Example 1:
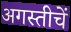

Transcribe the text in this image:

अगस्तीचें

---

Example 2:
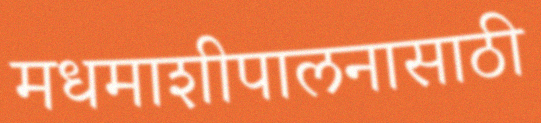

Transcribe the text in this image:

मधमाशीपालनासाठी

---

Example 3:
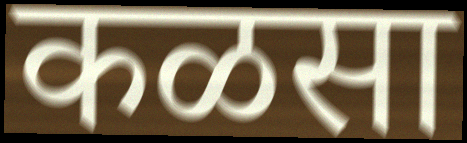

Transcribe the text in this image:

कळसा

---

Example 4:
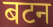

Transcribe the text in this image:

बटन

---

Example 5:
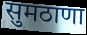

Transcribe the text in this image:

सुमठाणा